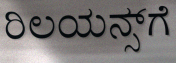
ರಿಲಯನ್ಸ್‌ಗೆ